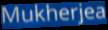
Mukherjea